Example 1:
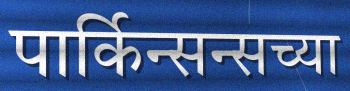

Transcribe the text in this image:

पार्किन्सन्सच्या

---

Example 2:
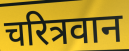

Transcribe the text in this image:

चरित्रवान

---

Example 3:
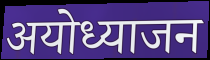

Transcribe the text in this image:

अयोध्याजन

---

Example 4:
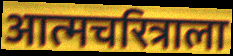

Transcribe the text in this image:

आत्मचरित्राला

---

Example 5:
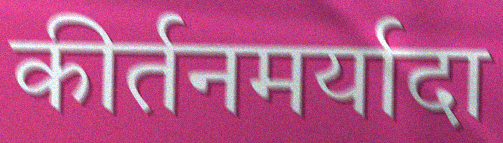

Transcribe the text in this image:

कीर्तनमर्यादा